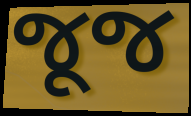
જૂજ